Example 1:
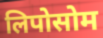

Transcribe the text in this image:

लिपोसोम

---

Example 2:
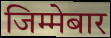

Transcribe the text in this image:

जिम्मेबार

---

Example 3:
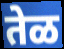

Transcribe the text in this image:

तेळ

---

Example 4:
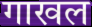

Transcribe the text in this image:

गाखल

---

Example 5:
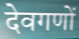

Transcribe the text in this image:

देवगणों